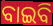
ବାଇବି